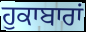
ਹੁਕਾਬਾਰਾਂ